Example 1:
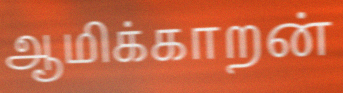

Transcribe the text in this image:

ஆமிக்காறன்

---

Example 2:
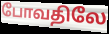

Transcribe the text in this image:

போவதிலே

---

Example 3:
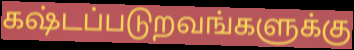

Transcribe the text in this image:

கஷ்டப்படுறவங்களுக்கு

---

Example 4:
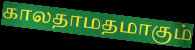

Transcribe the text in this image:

காலதாமதமாகும்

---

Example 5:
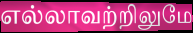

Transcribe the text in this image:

எல்லாவற்றிலுமே